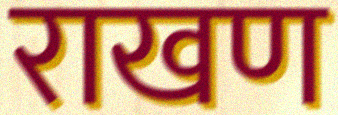
राखण